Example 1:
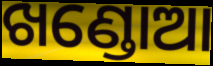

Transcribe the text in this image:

ଖଣ୍ଡୋଆ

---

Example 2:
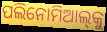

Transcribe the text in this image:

ପଲିନୋମିଆଲ୍‌କୁ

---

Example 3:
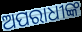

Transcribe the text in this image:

ଅପରାଧୀଙ୍କ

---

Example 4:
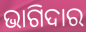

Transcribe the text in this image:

ଭାଗିଦାର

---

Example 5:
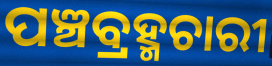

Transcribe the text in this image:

ପଞ୍ଚବ୍ରହ୍ମଚାରୀ